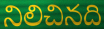
నిలిచినది